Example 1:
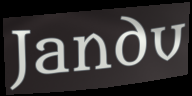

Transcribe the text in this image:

Jandu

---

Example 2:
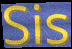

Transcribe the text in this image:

Sis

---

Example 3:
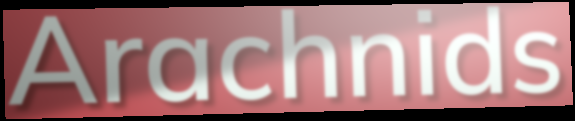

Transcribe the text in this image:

Arachnids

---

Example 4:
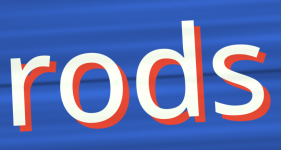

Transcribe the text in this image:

rods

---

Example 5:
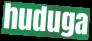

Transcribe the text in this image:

huduga